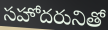
సహోదరునితో